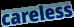
careless